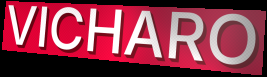
VICHARO